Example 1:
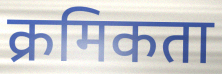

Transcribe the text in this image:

क्रमिकता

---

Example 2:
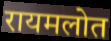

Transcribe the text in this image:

रायमलोत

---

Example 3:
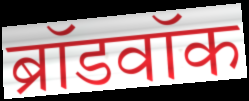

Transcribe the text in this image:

ब्रॉडवॉक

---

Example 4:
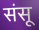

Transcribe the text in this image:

संसू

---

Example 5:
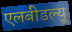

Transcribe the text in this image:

एलबीडल्यू